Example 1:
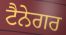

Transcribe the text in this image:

ਟੈਨੇਗਰ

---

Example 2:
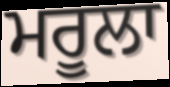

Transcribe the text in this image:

ਮਰੂਲਾ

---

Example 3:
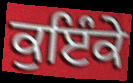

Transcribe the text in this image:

ਕੁਇੰਕੇ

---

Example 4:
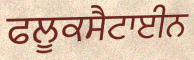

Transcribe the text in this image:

ਫਲੂਕਸੈਟਾਈਨ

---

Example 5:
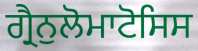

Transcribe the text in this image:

ਗ੍ਰੈਨੁਲੋਮਾਟੋਸਿਸ